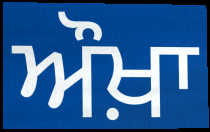
ਔਖ਼ਾ